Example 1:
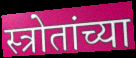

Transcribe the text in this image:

स्त्रोतांच्या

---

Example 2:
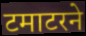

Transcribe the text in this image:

टमाटरने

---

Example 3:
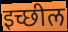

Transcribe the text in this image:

इच्छील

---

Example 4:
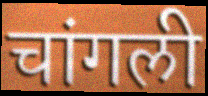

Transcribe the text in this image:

चांगली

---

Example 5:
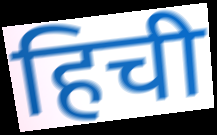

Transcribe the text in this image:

हिची